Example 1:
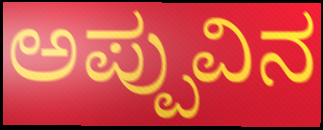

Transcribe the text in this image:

ಅಪ್ಪುವಿನ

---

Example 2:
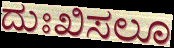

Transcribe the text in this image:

ದುಃಖಿಸಲೂ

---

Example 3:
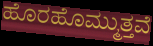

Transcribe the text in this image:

ಹೊರಹೊಮ್ಮುತ್ತವೆ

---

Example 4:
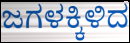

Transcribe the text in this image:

ಜಗಳಕ್ಕಿಳಿದ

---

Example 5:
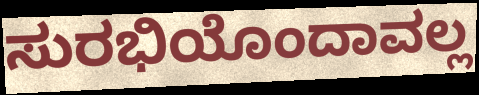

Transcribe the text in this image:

ಸುರಭಿಯೊಂದಾವಲ್ಲ